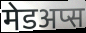
मेडअप्स